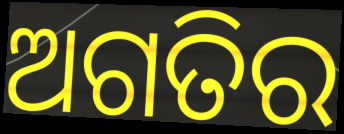
ଅଗତିର